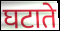
घटाते